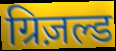
ग्रिज़ल्ड